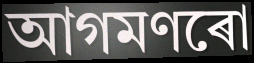
আগমণৰো